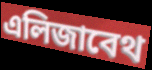
এলিজাবেথ